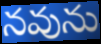
నవును